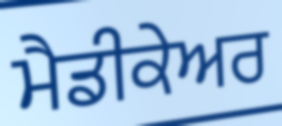
ਮੈਡੀਕੇਅਰ